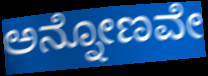
ಅನ್ನೋಣವೇ